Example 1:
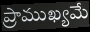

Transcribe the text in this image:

ప్రాముఖ్యమే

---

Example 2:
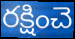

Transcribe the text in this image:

రక్షించె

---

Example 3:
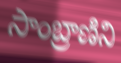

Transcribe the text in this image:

సాంబ్రాణిని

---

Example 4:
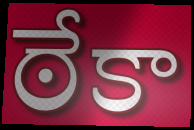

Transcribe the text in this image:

ఠేకా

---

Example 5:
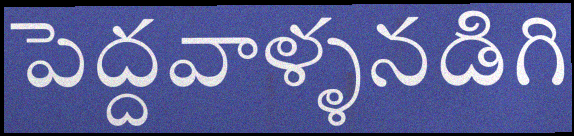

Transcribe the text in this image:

పెద్దవాళ్ళనడిగి